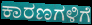
ಕಾರಣಗಳಿಗೆ